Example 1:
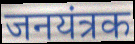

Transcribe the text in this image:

जनयंत्रक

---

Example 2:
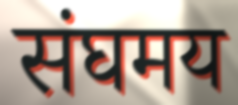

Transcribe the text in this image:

संघमय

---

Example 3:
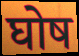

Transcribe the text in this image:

घोष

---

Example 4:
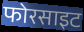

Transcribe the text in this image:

फोरसाइट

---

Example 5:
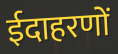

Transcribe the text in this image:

ईदाहरणों